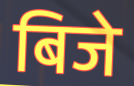
बिजे